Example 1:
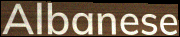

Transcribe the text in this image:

Albanese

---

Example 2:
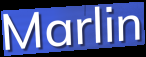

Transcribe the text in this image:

Marlin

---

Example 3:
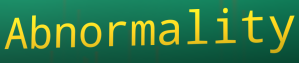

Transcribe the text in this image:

Abnormality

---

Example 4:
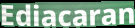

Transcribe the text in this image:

Ediacaran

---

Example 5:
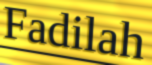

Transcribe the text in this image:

Fadilah